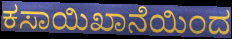
ಕಸಾಯಿಖಾನೆಯಿಂದ